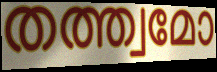
തത്ത്വമോ